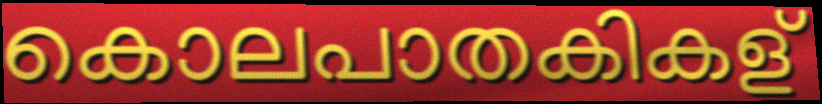
കൊലപാതകികള്